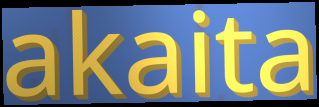
akaita